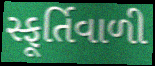
સ્ફૂર્તિવાળી